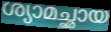
ശ്യാമച്ഛായ